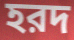
হরদ